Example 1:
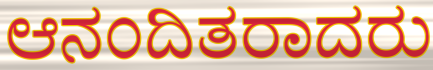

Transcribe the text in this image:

ಆನಂದಿತರಾದರು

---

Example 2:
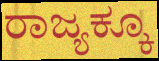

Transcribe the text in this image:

ರಾಜ್ಯಕ್ಕೂ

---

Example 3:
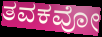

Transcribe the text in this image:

ತವಕವೋ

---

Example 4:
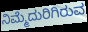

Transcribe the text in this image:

ನಿಮ್ಮೆದುರಿಗಿರುವ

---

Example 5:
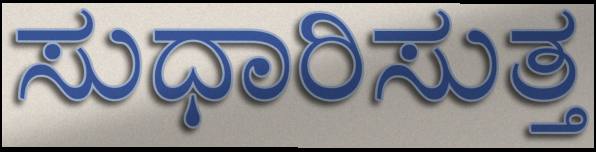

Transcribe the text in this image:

ಸುಧಾರಿಸುತ್ತ